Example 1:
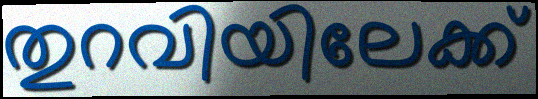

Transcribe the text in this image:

തുറവിയിലേക്ക്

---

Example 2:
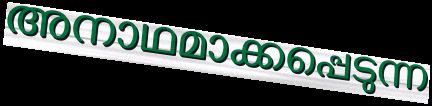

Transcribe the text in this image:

അനാഥമാക്കപ്പെടുന്ന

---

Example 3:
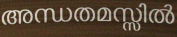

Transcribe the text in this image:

അന്ധതമസ്സിൽ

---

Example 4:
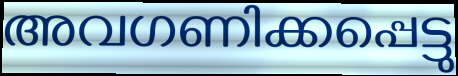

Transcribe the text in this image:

അവഗണിക്കപ്പെട്ടു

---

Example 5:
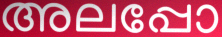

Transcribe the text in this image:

അലപ്പോ